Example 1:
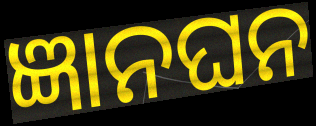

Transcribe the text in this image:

ଜ୍ଞାନଘନ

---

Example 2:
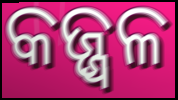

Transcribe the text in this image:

କଜ୍ଜ୍ୱଳ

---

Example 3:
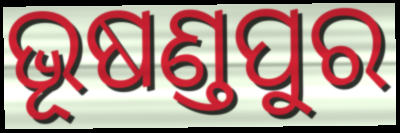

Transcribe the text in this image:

ଭୂଷଣ୍ଡପୁର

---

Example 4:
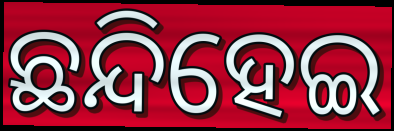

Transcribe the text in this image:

ଛନ୍ଦିହେଇ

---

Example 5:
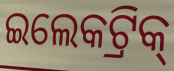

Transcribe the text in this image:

ଇଲେକଟ୍ରିକ୍